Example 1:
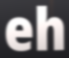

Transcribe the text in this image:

eh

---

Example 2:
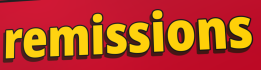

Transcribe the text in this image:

remissions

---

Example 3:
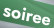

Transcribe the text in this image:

soiree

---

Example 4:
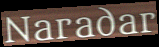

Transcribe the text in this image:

Naradar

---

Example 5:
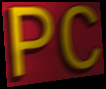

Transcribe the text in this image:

PC